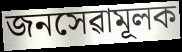
জনসেৱামূলক